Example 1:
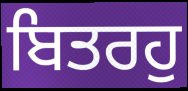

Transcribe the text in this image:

ਬਿਤਰਹੁ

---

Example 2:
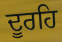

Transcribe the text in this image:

ਦੂਰਹਿ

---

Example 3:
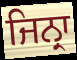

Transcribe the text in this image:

ਜਿਨ੍ਰਾ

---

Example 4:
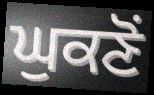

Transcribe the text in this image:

ਘੁਕਣੋਂ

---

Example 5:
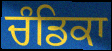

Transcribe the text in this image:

ਚੰਡਿਕਾ